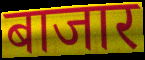
बाजार